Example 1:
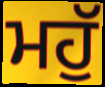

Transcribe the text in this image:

ਮਹੁੱ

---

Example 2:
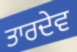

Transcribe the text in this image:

ਤਾਰਦੇਵ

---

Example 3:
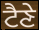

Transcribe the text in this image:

ਟੈਣੇ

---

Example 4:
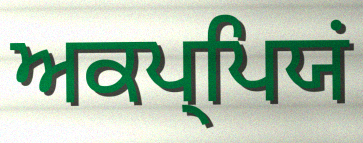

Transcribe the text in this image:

ਅਕਪ੍ਪਿਯਂ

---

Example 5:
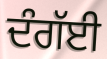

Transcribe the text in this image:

ਦੰਗੱਈ